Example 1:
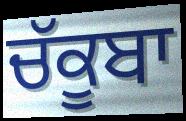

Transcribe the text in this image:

ਚੱਕੂਬਾ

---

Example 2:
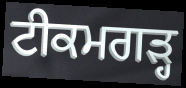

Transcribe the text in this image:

ਟੀਕਮਗੜ੍ਹ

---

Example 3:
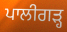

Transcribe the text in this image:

ਪਾਲੀਗੜ੍ਹ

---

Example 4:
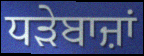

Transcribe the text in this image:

ਧੜੇਬਾਜ਼ਾਂ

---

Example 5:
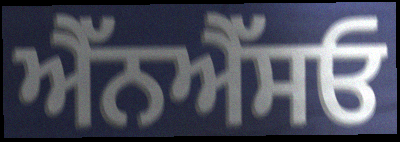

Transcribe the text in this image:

ਐੱਨਐੱਸਓ